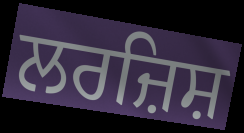
ਲਰਜ਼ਿਸ਼